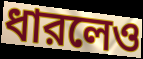
ধারলেও